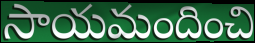
సాయమందించి